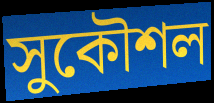
সুকৌশল